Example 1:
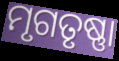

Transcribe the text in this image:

ମୃଗତୃଷ୍ଣା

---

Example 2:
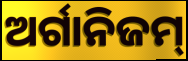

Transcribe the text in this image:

ଅର୍ଗାନିଜମ୍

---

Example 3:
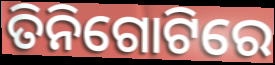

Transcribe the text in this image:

ତିନିଗୋଟିରେ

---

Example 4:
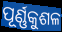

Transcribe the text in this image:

ପୂର୍ଣ୍ଣକୁଶଳ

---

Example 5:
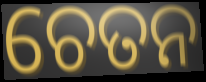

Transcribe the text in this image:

ଚେତନ